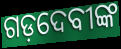
ଗଡ଼ଦେବୀଙ୍କ